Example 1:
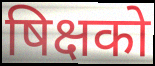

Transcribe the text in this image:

षिक्षको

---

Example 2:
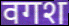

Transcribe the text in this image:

वगश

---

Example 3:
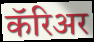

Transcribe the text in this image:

कॅरिअर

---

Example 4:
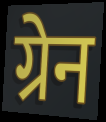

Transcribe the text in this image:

ग्रेन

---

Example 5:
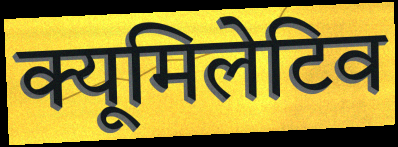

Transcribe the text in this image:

क्यूमिलेटिव